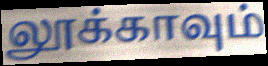
லூக்காவும்